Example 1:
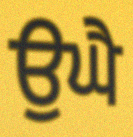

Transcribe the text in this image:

ਉਘੈ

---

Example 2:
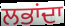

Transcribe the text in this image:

ਲਭਾਂਦਾ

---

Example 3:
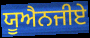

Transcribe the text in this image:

ਯੂਐਨਜੀਏ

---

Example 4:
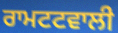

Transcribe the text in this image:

ਰਾਮਟਟਵਾਲੀ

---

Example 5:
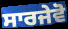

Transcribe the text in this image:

ਸਾਰਜੇਵੋ